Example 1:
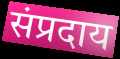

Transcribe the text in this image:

संप्रदाय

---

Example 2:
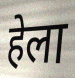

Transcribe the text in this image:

हेला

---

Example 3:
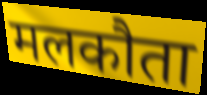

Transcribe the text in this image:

मलकौता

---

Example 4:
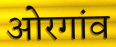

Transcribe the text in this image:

ओरगांव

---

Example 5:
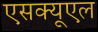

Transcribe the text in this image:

एसक्यूएल